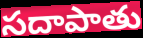
సదాపాతు